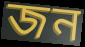
জন